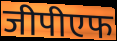
जीपीएफ